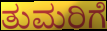
ತುಮರಿಗೆ